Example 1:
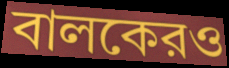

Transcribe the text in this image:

বালকেরও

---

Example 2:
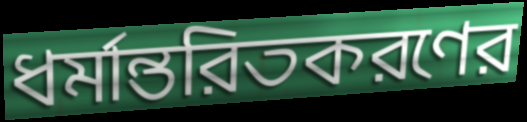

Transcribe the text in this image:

ধর্মান্তরিতকরণের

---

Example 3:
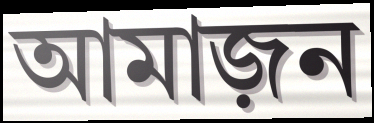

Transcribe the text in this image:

আমাজ়ন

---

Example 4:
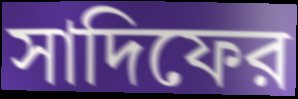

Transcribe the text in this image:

সাদিফের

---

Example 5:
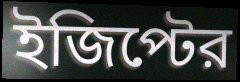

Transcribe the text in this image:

ইজিপ্টের